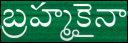
బ్రహ్మకైనా